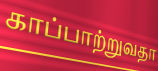
காப்பாற்றுவதா